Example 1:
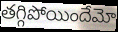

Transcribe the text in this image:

తగ్గిపోయిందేమో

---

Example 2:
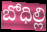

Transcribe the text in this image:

బోధిల్లి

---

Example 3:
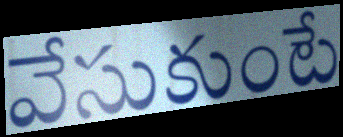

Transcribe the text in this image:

వేసుకుంటే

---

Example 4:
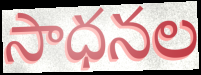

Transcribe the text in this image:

సాధనల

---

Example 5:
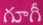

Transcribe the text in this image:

గూగీ